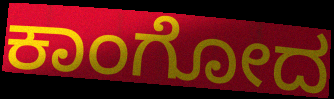
ಕಾಂಗೋದ